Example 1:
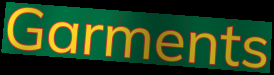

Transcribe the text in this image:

Garments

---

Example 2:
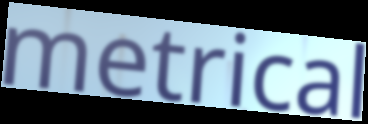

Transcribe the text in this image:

metrical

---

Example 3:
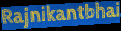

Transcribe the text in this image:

Rajnikantbhai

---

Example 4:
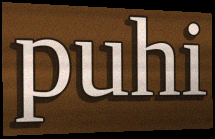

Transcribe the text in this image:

puhi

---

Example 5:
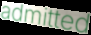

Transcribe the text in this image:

admitted